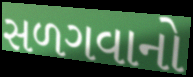
સળગવાનો